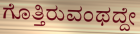
ಗೊತ್ತಿರುವಂಥದ್ದೇ